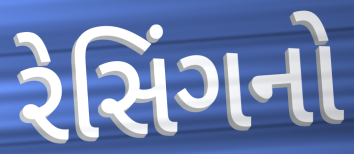
રેસિંગનો